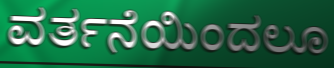
ವರ್ತನೆಯಿಂದಲೂ